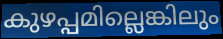
കുഴപ്പമില്ലെങ്കിലും